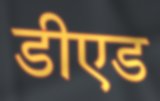
डीएड